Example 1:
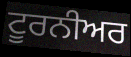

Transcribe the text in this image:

ਟੂਰਨੀਅਰ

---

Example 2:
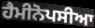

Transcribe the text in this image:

ਹੈਮੀਨੋਪਸੀਆ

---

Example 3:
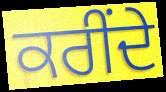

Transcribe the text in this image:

ਕਰੀਂਦੇ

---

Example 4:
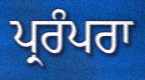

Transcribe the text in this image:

ਪ੍ਰਰੰਪਰਾ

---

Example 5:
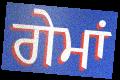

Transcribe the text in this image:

ਗੇਮਾਂ